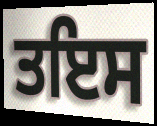
ਤਇਸ